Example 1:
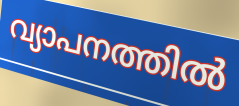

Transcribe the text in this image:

വ്യാപനത്തിൽ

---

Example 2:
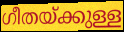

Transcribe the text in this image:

ഗീതയ്ക്കുള്ള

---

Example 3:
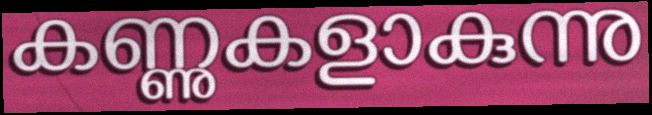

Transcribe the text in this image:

കണ്ണുകളാകുന്നു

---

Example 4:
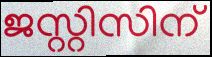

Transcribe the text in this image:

ജസ്റ്റിസിന്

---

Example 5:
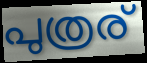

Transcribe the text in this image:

പുത്രര്